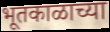
भूतकाळाच्या